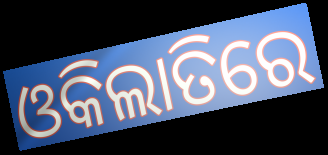
ଓକିଲାତିରେ